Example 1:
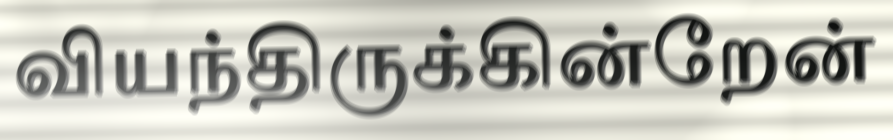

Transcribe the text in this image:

வியந்திருக்கின்றேன்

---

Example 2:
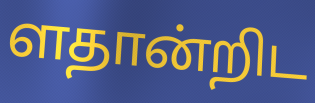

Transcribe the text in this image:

ளதான்றிட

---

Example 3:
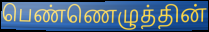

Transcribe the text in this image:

பெண்ணெழுத்தின்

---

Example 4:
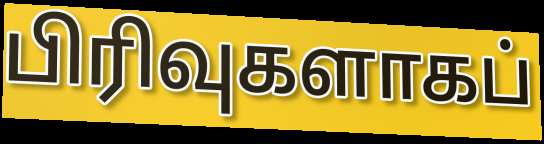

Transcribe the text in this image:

பிரிவுகளாகப்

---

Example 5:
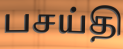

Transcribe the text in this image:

பசய்தி